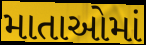
માતાઓમાં